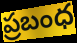
ప్రబంధ